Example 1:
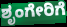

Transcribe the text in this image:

ಶೃಂಗೇರಿಗೆ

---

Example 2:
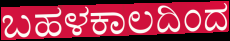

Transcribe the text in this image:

ಬಹಳಕಾಲದಿಂದ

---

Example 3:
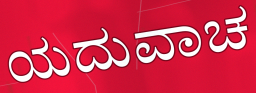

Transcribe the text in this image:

ಯದುವಾಚ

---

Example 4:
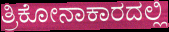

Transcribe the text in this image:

ತ್ರಿಕೋನಾಕಾರದಲ್ಲಿ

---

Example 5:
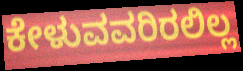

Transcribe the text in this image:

ಕೇಳುವವರಿರಲಿಲ್ಲ